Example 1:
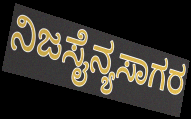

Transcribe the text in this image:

ನಿಜಸೈನ್ಯಸಾಗರ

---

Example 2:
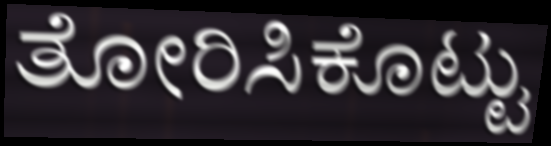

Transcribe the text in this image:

ತೋರಿಸಿಕೊಟ್ಟು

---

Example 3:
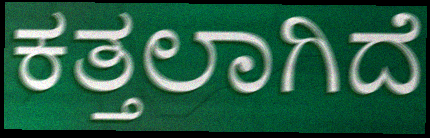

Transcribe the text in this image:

ಕತ್ತಲಾಗಿದೆ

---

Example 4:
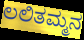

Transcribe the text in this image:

ಲಲಿತಮ್ಮನ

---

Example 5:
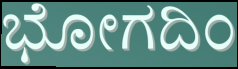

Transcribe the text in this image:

ಭೋಗದಿಂ